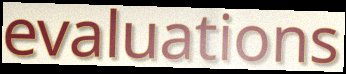
evaluations